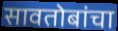
सावतोबांचा